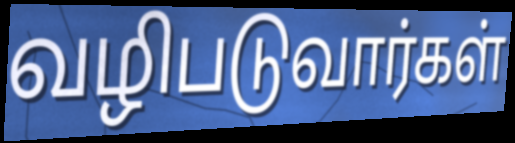
வழிபடுவார்கள்